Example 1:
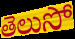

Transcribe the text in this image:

తెలుసో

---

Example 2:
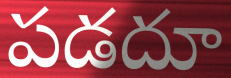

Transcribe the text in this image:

పడదూ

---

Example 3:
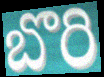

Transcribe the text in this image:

బొరి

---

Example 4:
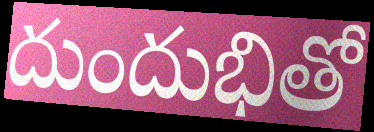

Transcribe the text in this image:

దుందుభితో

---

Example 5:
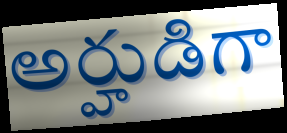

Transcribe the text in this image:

అర్హుడిగా